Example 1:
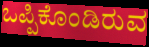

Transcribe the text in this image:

ಒಪ್ಪಿಕೊಂಡಿರುವ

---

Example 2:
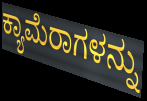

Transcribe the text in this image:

ಕ್ಯಾಮೆರಾಗಳನ್ನು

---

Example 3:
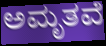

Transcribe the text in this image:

ಅಮೃತವೆ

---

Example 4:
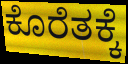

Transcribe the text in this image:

ಕೊರೆತಕ್ಕೆ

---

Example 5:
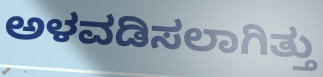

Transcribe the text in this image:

ಅಳವಡಿಸಲಾಗಿತ್ತು